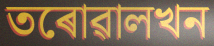
তৰোৱালখন